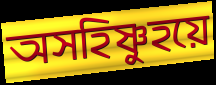
অসহিষ্ণুহয়ে